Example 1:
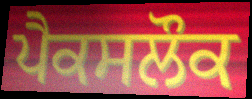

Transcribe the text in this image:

ਪੈਕਸਲੌਕ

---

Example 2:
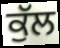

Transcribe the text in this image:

ਕੁੱਲ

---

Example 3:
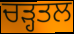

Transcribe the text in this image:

ਚੜ੍ਹਤਲ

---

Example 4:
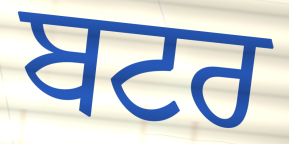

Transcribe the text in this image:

ਬਟਰ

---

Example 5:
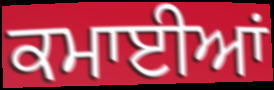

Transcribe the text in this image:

ਕਮਾਈਆਂ